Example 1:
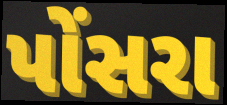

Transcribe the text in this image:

પોંસરા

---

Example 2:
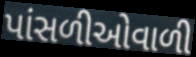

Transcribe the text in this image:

પાંસળીઓવાળી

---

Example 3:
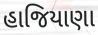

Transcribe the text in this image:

હાજિયાણા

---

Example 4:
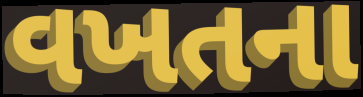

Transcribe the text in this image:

વખતના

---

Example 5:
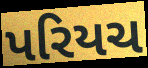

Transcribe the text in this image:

પરિયચ